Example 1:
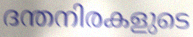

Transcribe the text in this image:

ദന്തനിരകളുടെ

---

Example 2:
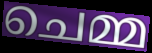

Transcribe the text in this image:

ചെമ്മ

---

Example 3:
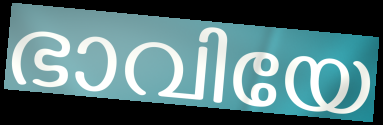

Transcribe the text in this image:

ഭാവിയേ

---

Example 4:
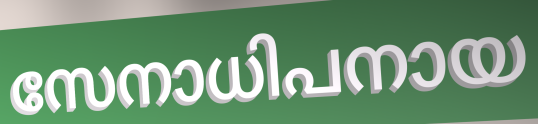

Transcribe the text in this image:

സേനാധിപനായ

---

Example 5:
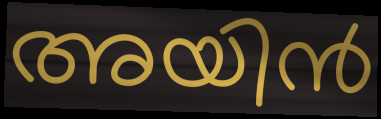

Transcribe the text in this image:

അയിൻ